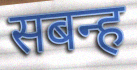
सबन्ह